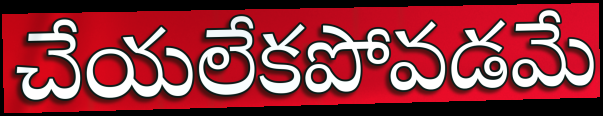
చేయలేకపోవడమే